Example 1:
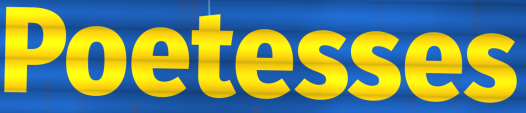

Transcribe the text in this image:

Poetesses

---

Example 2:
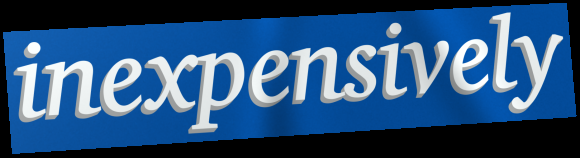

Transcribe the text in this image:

inexpensively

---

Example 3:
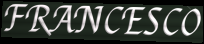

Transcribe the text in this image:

FRANCESCO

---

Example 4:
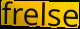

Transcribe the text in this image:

frelse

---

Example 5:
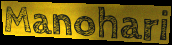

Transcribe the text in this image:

Manohari